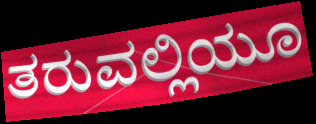
ತರುವಲ್ಲಿಯೂ